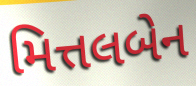
મિત્તલબેન